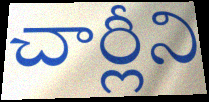
చార్లీని